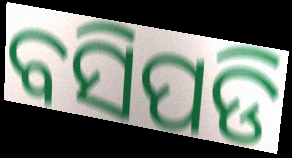
ବସିପଡି